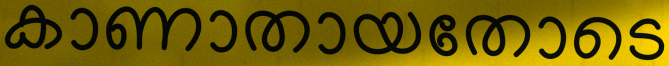
കാണാതായതോടെ